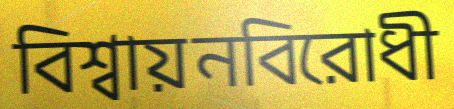
বিশ্বায়নবিরোধী